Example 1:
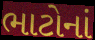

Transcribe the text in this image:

ભાટોનાં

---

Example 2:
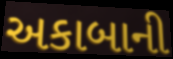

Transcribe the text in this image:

અકાબાની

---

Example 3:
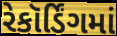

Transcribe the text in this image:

રેકૉર્ડિંગમાં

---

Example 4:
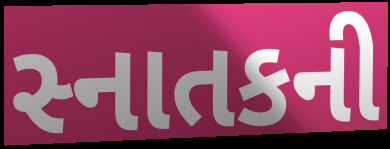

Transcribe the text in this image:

સ્નાતકની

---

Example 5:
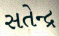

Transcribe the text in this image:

સતેન્દ્ર